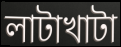
লাটাখাটা